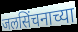
जलसिंचनाच्या